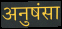
अनुषंसा